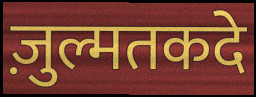
ज़ुल्मतकदे